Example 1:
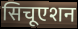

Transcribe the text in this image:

सिचूएशन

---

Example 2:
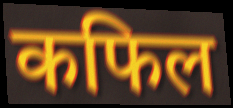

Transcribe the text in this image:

कफिल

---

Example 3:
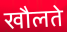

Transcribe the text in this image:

खौलते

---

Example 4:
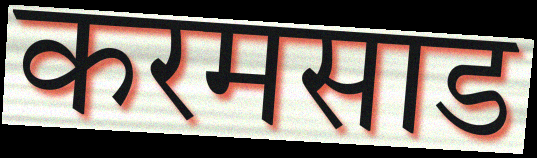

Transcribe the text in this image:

करमसाड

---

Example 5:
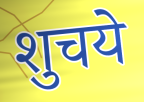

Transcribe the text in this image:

शुचये